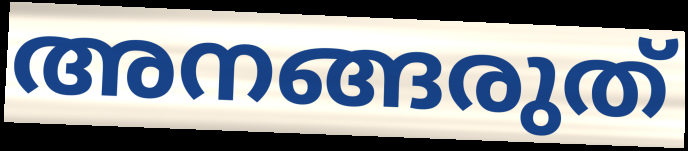
അനങ്ങരുത്